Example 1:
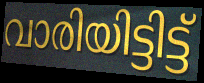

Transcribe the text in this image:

വാരിയിട്ടിട്ട്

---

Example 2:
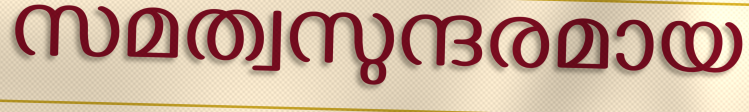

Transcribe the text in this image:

സമത്വസുന്ദരമായ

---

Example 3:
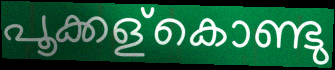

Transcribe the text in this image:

പൂക്കള്കൊണ്ടു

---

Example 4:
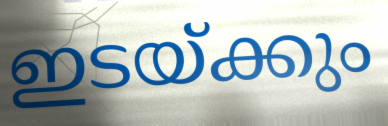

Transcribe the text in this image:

ഇടയ്ക്കും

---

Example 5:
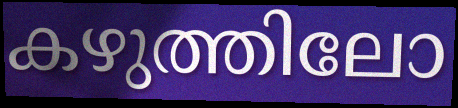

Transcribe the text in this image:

കഴുത്തിലോ